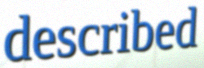
described